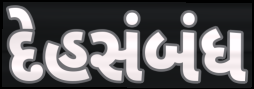
દેહસંબંધ